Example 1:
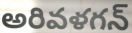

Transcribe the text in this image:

అరివళగన్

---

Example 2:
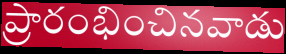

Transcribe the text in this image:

ప్రారంభించినవాడు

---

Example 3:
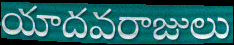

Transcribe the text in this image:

యాదవరాజులు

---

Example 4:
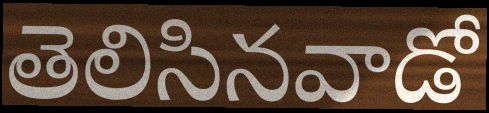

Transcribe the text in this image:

తెలిసినవాడో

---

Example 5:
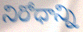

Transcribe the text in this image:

నిరోధాన్ని